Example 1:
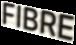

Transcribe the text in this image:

FIBRE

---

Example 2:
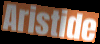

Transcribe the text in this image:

Aristide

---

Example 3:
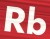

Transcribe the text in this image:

Rb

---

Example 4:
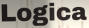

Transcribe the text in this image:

Logica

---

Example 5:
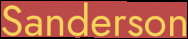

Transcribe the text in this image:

Sanderson